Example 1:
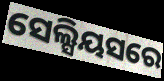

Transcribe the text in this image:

ସେଲ୍ସିୟସରେ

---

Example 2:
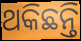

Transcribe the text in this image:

ଥକିଛନ୍ତି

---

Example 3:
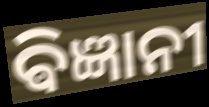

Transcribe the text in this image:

ଵିଜ୍ଞାନୀ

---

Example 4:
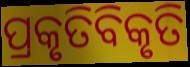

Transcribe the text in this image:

ପ୍ରକୃତିବିକୃତି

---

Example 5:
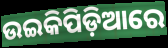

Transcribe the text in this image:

ଉଇକିପିଡ଼ିଆରେ